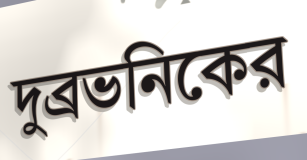
দুব্রভনিকের